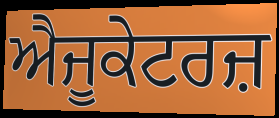
ਐਜੂਕੇਟਰਜ਼